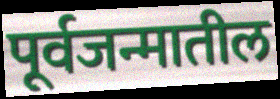
पूर्वजन्मातील